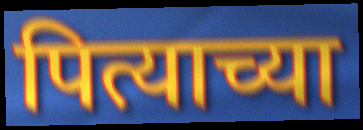
पित्याच्या